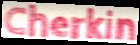
Cherkin